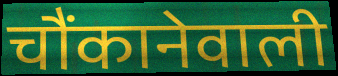
चौंकानेवाली